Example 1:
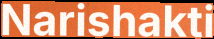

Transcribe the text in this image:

Narishakti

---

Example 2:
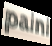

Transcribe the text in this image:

paini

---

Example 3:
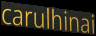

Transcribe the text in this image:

carulhinai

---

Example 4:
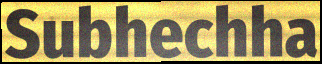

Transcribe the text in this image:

Subhechha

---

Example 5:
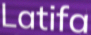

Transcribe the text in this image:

Latifa